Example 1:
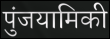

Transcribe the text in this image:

पुंजयामिकी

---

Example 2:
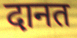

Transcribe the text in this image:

दानत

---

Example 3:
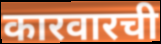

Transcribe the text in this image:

कारवारची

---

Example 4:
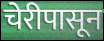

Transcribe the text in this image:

चेरीपासून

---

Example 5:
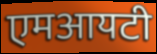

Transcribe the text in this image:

एमआयटी